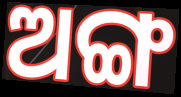
ଅଙ୍ଗ